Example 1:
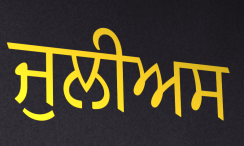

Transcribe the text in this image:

ਜੁਲੀਅਸ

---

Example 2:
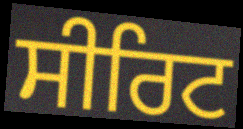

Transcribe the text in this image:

ਸੀਰਿਟ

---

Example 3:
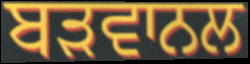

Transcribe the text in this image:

ਬੜਵਾਨਲ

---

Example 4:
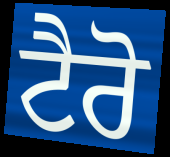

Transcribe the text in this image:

ਟੈਰੋ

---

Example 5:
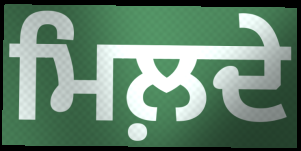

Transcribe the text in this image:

ਮਿਲ਼ਦੇ